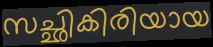
സച്ഛികിരിയായ